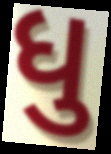
ધુ